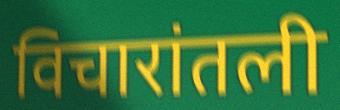
विचारांतली